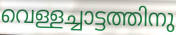
വെള്ളച്ചാട്ടത്തിനു